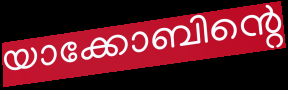
യാക്കോബിന്റെ